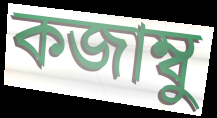
কজাম্বু